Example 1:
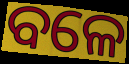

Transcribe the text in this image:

ବଳେ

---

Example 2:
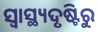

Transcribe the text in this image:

ସ୍ୱାସ୍ଥ୍ୟଦୃଷ୍ଟିରୁ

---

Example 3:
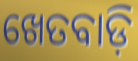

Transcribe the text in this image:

ଖେତବାଡ଼ି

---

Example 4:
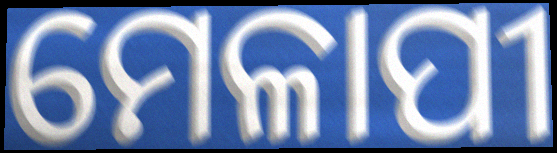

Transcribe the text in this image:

ମେଳାପୀ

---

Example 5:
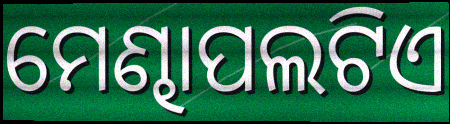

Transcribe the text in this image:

ମେଣ୍ଢାପଲଟିଏ